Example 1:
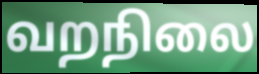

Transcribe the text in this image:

வறநிலை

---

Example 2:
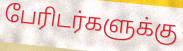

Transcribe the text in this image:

பேரிடர்களுக்கு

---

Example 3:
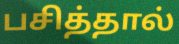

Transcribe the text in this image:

பசித்தால்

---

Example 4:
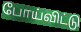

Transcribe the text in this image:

போய்விட்டு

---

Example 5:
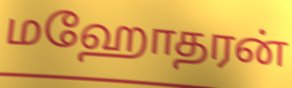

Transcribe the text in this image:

மஹோதரன்